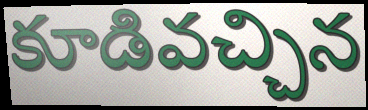
కూడివచ్చిన